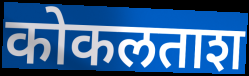
कोकलताश